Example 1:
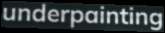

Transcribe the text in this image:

underpainting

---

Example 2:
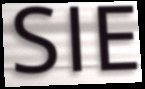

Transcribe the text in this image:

SIE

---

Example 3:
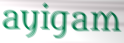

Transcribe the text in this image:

ayigam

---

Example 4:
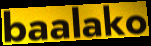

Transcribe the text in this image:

baalako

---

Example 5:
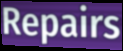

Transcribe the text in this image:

Repairs